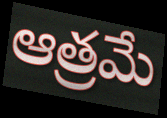
ఆత్రమే